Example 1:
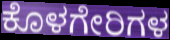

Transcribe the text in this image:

ಕೊಳಗೇರಿಗಳ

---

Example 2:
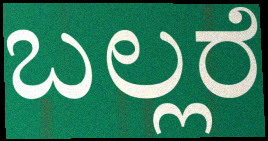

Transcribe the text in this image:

ಬಲ್ಲರೆ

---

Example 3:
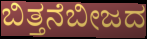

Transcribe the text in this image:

ಬಿತ್ತನೆಬೀಜದ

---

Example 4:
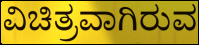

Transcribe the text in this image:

ವಿಚಿತ್ರವಾಗಿರುವ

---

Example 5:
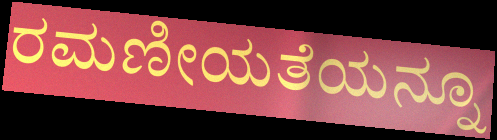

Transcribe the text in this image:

ರಮಣೀಯತೆಯನ್ನೂ